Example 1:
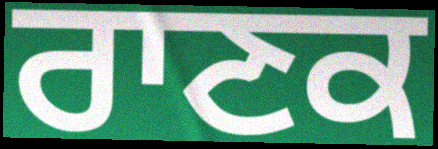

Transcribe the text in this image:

ਰਾਣਕ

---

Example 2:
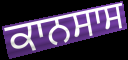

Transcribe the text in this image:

ਕਾਨਸਾਸ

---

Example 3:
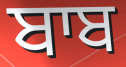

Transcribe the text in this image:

ਬਾਬ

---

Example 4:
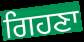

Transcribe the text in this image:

ਗਿਹਣਾ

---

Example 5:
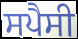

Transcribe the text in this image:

ਸਪੈਸੀ